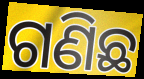
ଗଣିଛ